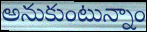
అనుకుంటున్నాం